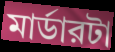
মার্ডারটা